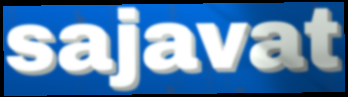
sajavat